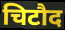
चिटौद